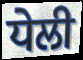
ਧੇਲੀ